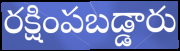
రక్షింపబడ్డారు